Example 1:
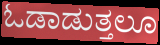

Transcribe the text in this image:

ಓಡಾಡುತ್ತಲೂ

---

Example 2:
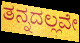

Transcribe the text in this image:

ತನ್ನದಲ್ಲವೇ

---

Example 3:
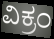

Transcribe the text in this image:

ವಿಕ್ರಂ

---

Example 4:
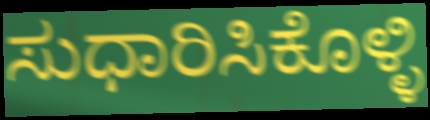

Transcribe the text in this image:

ಸುಧಾರಿಸಿಕೊಳ್ಳಿ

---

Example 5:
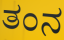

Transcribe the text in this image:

ತಂನ